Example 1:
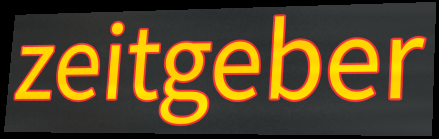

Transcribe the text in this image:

zeitgeber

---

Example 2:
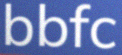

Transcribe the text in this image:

bbfc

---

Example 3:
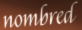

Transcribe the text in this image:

nombred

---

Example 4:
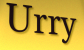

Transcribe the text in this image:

Urry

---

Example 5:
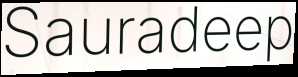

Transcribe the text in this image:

Sauradeep